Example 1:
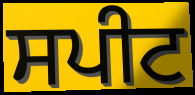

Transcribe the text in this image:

ਸਪੀਟ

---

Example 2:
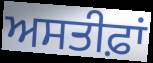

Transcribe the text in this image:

ਅਸਤੀਫ਼ਾਂ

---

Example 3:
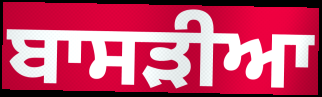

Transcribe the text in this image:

ਬਾਸੜੀਆ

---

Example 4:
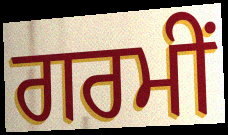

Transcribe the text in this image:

ਗਰਮੀਂ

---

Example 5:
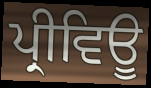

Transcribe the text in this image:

ਪ੍ਰੀਵਿਊ